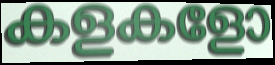
കളകളോ